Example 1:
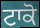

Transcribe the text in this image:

ਟਾਕੋ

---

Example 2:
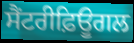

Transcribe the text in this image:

ਸੈਂਟਰੀਫ਼ਿਊਗਲ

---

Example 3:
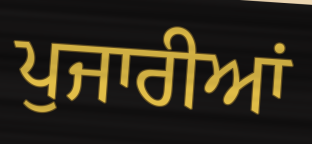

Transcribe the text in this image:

ਪੁਜਾਰੀਆਂ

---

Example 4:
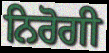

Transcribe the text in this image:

ਨਿਰੋਗੀ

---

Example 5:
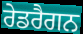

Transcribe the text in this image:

ਰੇਡਰੈਗਨ